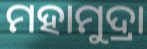
ମହାମୁଦ୍ରା